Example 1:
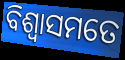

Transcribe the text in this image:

ବିଶ୍ୱାସମତେ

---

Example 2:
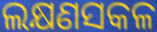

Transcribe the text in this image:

ଲକ୍ଷଣସକଳ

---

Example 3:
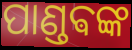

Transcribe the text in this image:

ପାଣ୍ଡଵଙ୍କ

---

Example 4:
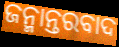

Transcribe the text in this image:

ଜନ୍ମାନ୍ତରବାଦ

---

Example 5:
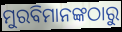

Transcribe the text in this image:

ମୁରବିମାନଙ୍କଠାରୁ